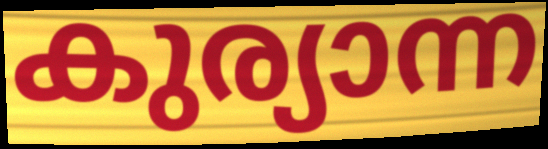
കുര്യാന്ന